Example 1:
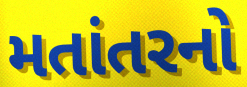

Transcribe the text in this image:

મતાંતરનો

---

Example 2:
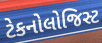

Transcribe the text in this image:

ટેકનોલોજિસ્ટ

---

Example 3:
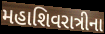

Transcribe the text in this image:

મહાશિવરાત્રીના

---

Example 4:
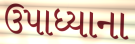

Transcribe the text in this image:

ઉપાધ્યાના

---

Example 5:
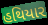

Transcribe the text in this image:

હથિયાર